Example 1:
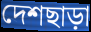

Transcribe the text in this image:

দেশছাড়া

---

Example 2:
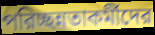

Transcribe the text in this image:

পরিচ্ছন্নতাকর্মীদের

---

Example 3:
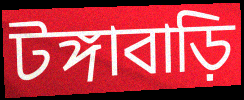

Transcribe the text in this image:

টঙ্গাবাড়ি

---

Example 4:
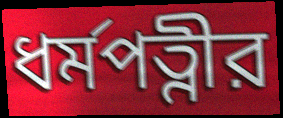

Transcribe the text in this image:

ধর্মপত্নীর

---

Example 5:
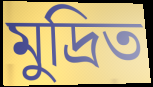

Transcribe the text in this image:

মুদ্রিত